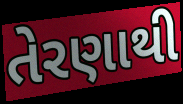
તેરણાથી